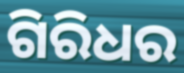
ଗିରିଧର